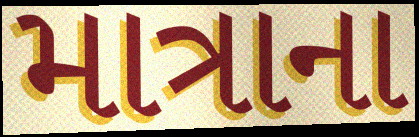
માત્રાના